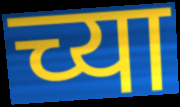
च्या